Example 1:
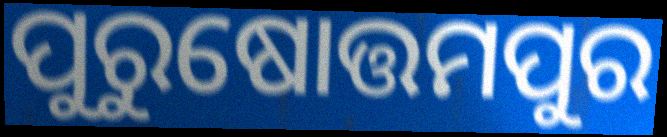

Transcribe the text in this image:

ପୁରୁଷୋତ୍ତମପୁର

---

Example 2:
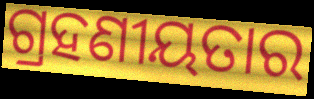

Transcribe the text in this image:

ଗ୍ରହଣୀୟତାର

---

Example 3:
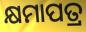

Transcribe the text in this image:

କ୍ଷମାପତ୍ର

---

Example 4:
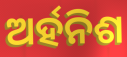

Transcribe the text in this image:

ଅର୍ହନିଶ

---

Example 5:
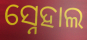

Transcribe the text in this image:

ସ୍ନେହାଲ